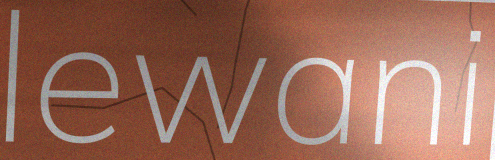
lewani